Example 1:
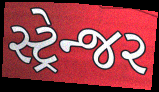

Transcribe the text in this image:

સ્ટ્રેન્જર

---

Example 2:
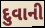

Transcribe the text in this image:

દુવાની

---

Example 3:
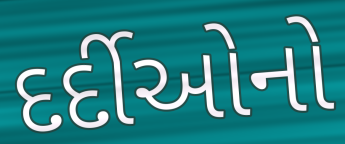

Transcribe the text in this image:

દર્દીઓનો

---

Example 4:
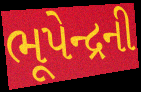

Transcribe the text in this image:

ભૂપેન્દ્રની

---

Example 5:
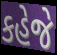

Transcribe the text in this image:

કહેજે